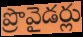
ప్రొవైడర్లు